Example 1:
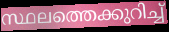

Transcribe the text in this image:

സ്ഥലത്തെക്കുറിച്ച്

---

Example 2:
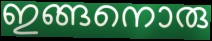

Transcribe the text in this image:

ഇങ്ങനൊരു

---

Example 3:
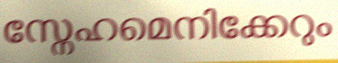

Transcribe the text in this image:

സ്നേഹമെനിക്കേറും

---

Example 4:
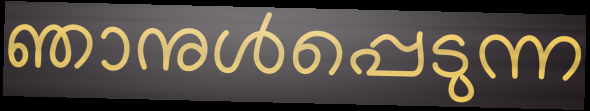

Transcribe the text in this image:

ഞാനുൾപ്പെടുന്ന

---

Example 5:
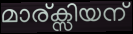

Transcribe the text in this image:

മാര്ക്സിയന്